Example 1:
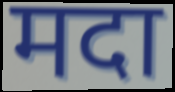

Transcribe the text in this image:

मदा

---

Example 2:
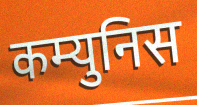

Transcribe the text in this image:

कम्युनिस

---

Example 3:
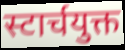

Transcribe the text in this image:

स्टार्चयुक्त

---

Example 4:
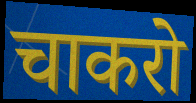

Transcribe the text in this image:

चाकरो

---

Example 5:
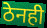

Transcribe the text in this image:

ठेनही